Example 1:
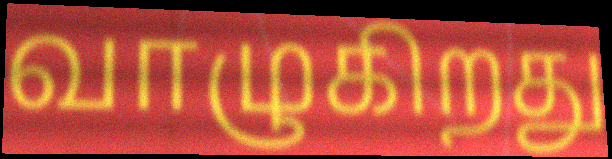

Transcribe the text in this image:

வாழுகிறது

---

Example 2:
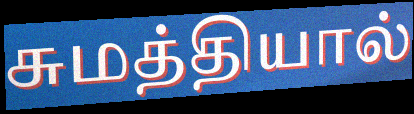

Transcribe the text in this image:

சுமத்தியால்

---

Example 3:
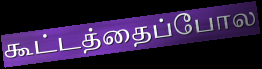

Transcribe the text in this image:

கூட்டத்தைப்போல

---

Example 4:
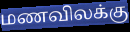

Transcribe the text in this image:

மணவிலக்கு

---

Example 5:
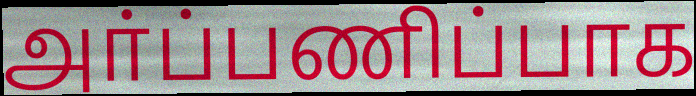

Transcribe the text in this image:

அர்ப்பணிப்பாக